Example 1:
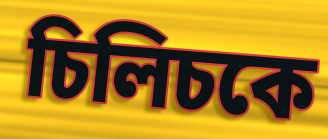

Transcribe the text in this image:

চিলিচকে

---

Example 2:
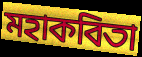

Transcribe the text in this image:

মহাকবিতা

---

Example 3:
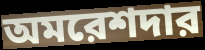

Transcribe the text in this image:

অমরেশদার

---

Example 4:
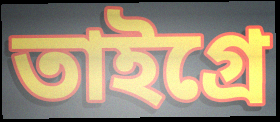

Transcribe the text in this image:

তাইগ্রে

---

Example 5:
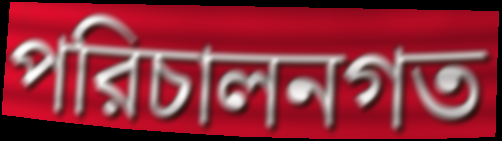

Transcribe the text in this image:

পরিচালনগত